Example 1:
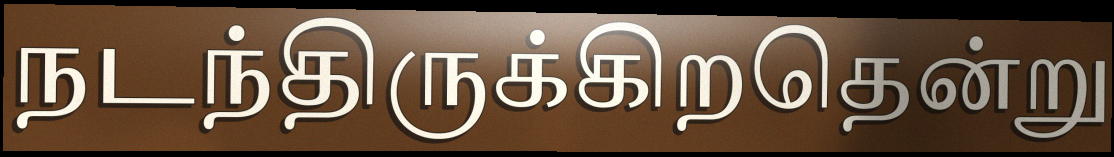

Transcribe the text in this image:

நடந்திருக்கிறதென்று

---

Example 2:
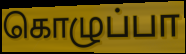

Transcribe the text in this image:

கொழுப்பா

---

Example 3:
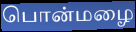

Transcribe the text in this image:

பொன்மழை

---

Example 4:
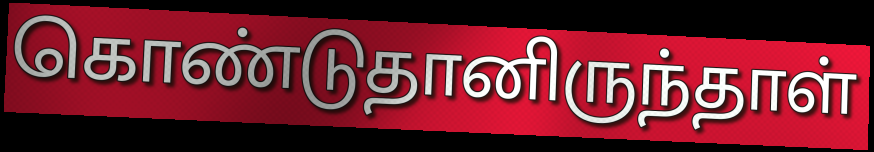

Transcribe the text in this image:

கொண்டுதானிருந்தாள்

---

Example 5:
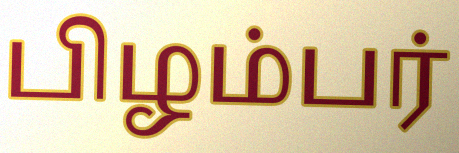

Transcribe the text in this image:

பிழம்பர்